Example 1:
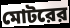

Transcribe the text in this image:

মোটরের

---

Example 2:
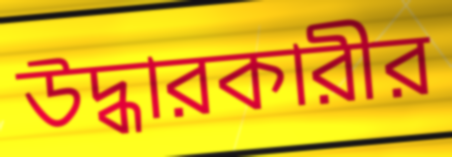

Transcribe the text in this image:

উদ্ধারকারীর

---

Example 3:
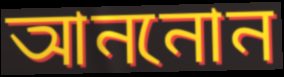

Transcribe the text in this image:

আননোন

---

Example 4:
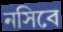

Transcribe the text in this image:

নসিবে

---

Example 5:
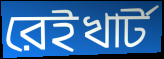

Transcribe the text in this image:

রেইখার্ট